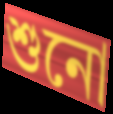
শুনো